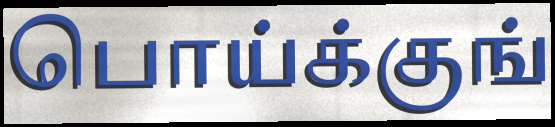
பொய்க்குங்